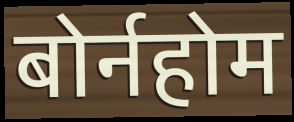
बोर्नहोम